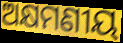
ଅକ୍ଷମଣୀୟ